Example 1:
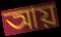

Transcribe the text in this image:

আয়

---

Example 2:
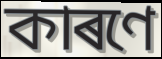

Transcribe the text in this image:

কাৰণে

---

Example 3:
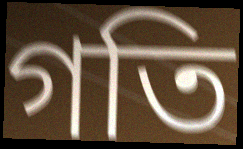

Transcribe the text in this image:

গতি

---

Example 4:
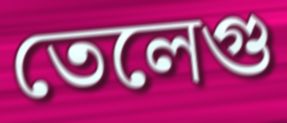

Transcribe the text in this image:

তেলেগু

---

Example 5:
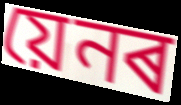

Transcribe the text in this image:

য়েনৰ